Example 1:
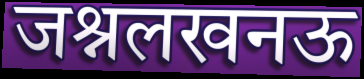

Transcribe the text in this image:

जश्नलखनऊ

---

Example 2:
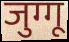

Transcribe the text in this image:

जुग्गू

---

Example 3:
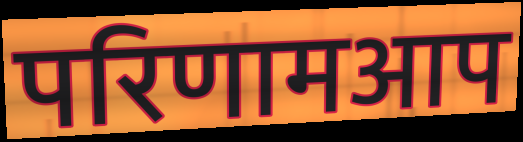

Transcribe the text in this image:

परिणामआप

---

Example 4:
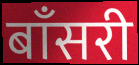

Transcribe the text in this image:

बाँसरी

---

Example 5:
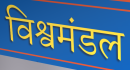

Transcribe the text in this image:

विश्वमंडल